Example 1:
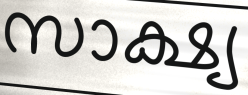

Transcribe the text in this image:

സാക്ഷ്യ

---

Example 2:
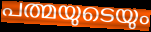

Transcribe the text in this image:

പത്മയുടെയും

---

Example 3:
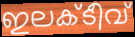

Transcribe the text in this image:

ഇലക്ടീവ്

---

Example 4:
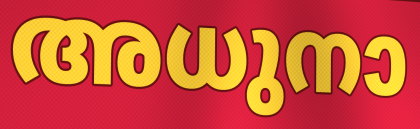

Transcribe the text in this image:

അധുനാ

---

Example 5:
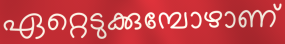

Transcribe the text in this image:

ഏറ്റെടുക്കുമ്പോഴാണ്